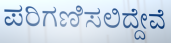
ಪರಿಗಣಿಸಲಿದ್ದೇವೆ